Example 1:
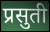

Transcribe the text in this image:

प्रसुती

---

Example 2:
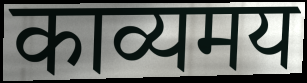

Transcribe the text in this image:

काव्यमय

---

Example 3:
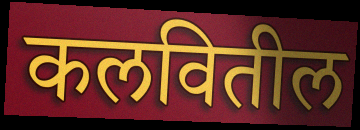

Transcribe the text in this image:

कलवितील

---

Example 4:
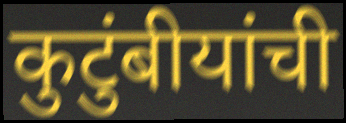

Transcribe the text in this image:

कुटुंबीयांची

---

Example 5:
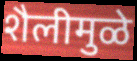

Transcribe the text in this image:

शैलीमुळे